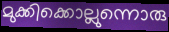
മുക്കിക്കൊല്ലുന്നൊരു